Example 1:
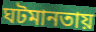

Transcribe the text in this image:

ঘটমানতায়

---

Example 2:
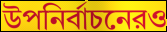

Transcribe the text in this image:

উপনির্বাচনেরও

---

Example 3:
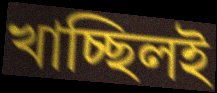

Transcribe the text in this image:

খাচ্ছিলই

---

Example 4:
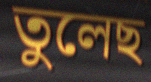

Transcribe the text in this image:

তুলেছ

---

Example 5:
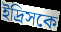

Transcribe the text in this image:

ইদ্রিসকে